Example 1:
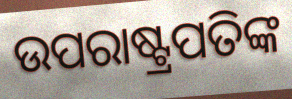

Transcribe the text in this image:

ଉପରାଷ୍ଟ୍ରପତିଙ୍କ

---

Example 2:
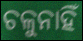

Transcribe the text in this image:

ଚଳୁନାହିଁ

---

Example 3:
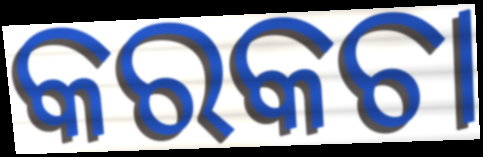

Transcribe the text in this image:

କରକଚା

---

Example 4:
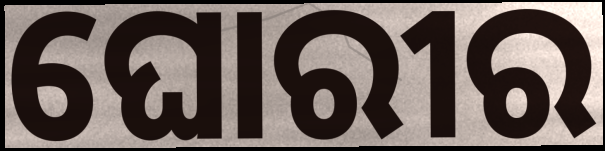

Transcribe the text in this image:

ଘୋରୀର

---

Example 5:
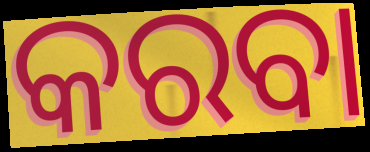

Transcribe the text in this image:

କରବା